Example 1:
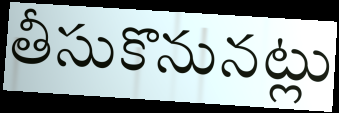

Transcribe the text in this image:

తీసుకొనునట్లు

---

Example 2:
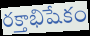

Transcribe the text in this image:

రక్తాభిషేకం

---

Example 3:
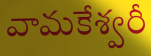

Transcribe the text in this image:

వామకేశ్వరీ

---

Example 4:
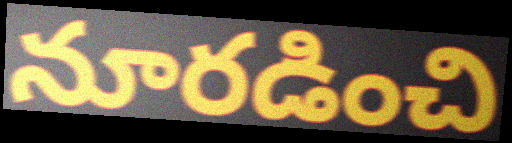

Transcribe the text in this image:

నూరడించి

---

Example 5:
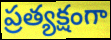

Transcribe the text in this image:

ప్రత్యక్షంగా